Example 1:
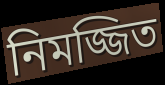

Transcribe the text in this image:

নিমজ্জিত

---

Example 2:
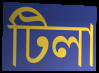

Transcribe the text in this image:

টিলা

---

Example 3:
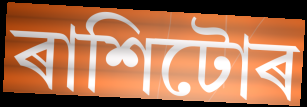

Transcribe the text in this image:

ৰাশিটোৰ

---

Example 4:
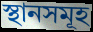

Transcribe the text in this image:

স্থানসমূহ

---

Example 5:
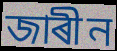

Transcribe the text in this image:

জাৰীন